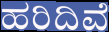
ಹರಿದಿವೆ